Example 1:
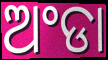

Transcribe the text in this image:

ଅଂଡା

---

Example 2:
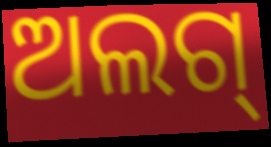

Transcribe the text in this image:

ଅଲଗ୍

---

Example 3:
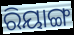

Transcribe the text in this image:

ରିୟାଙ୍ଗ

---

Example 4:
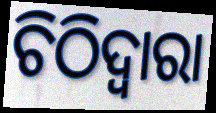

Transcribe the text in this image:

ଚିଠିଦ୍ୱାରା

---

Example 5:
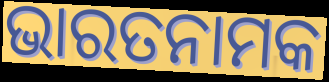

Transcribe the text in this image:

ଭାରତନାମକ